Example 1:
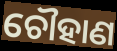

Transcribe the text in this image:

ଚୌହାଣ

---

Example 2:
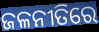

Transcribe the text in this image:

ଜଳନୀତିରେ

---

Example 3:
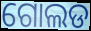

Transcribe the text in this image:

ଗୋଲଡ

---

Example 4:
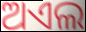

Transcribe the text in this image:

ଅଏଲ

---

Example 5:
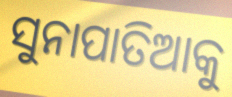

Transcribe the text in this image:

ସୁନାପାତିଆକୁ